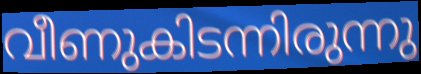
വീണുകിടന്നിരുന്നു